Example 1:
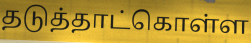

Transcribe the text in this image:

தடுத்தாட்கொள்ள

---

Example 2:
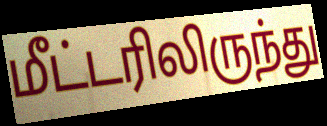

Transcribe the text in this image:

மீட்டரிலிருந்து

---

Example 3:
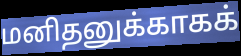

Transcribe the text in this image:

மனிதனுக்காகக்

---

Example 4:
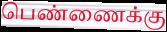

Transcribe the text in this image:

பெண்ணைக்கு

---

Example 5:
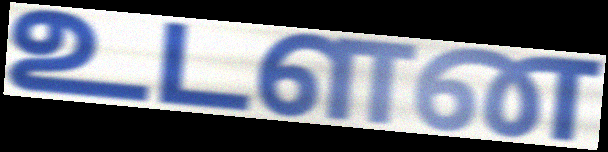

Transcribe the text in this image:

உடளன